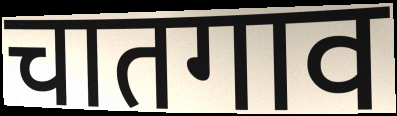
चातगाव